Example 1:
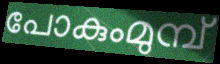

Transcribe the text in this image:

പോകുംമുമ്പ്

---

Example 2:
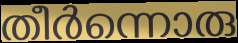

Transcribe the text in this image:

തീർന്നൊരു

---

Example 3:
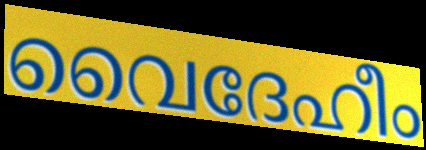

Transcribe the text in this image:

വൈദേഹീം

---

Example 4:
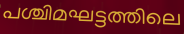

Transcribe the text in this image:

പശ്ചിമഘട്ടത്തിലെ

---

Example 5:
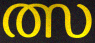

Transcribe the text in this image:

ത്സ